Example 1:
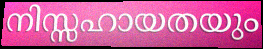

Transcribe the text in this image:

നിസ്സഹായതയും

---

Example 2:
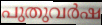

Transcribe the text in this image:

പുതുവർഷ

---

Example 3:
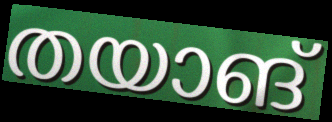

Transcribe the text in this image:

തയാങ്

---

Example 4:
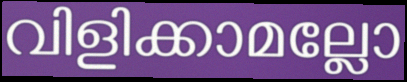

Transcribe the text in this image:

വിളിക്കാമല്ലോ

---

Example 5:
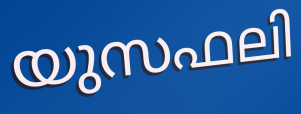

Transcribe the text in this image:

യുസഫലി